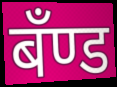
बँण्ड